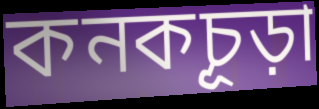
কনকচূড়া